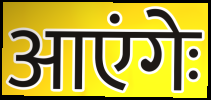
आएंगेः